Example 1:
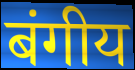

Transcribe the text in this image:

बंगीय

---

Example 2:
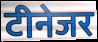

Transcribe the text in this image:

टीनेजर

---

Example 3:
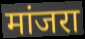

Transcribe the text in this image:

मांजरा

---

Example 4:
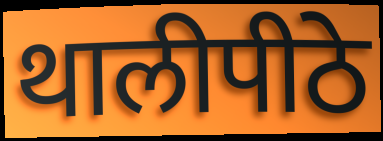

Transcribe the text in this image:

थालीपीठे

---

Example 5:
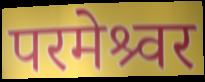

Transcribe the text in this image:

परमेश्र्वर